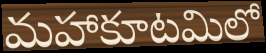
మహాకూటమిలో